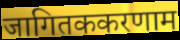
जागितककरणाम